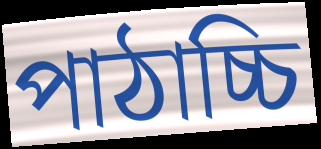
পাঠাচ্চি